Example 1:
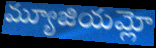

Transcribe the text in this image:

మ్యూజియమ్లో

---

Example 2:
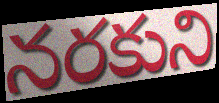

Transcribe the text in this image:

నరకుని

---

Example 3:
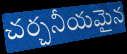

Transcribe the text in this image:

చర్చనీయమైన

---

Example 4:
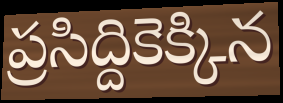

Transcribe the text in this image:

ప్రసిద్దికెక్కిన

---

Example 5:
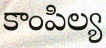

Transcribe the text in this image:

కాంపిల్య